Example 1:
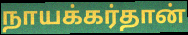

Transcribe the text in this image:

நாயக்கர்தான்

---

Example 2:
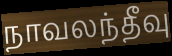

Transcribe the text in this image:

நாவலந்தீவு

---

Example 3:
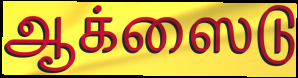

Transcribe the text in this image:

ஆக்ஸைடு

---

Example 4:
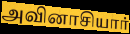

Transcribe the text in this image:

அவினாசியார்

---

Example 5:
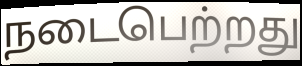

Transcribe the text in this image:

நடைபெற்றது